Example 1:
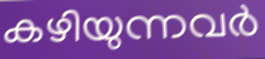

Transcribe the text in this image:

കഴിയുന്നവർ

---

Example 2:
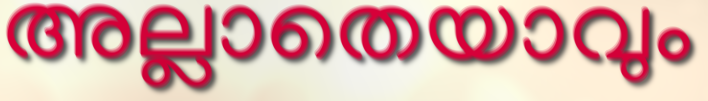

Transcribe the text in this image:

അല്ലാതെയാവും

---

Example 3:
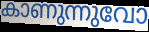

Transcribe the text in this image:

കാണുന്നുവോ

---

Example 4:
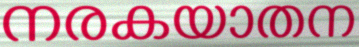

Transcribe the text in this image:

നരകയാതന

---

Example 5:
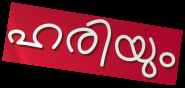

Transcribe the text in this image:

ഹരിയും